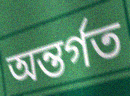
অন্তৰ্গত